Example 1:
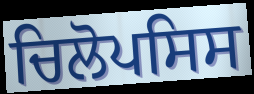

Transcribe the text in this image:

ਚਿਲੋਪਸਿਸ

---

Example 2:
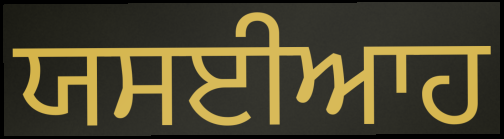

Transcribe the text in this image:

ਯਸਈਆਹ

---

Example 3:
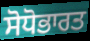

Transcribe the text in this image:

ਸੋਧੋਭਾਰਤ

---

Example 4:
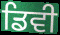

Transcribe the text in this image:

ਡਿਵੀ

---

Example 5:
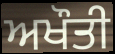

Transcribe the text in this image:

ਅਖੌਤੀ